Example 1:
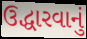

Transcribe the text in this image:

ઉદ્ધારવાનું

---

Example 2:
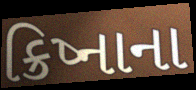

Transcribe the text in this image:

ક્રિષ્નાના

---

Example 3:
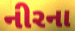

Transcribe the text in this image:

નીરના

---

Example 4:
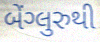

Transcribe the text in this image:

બેંગ્લુરુથી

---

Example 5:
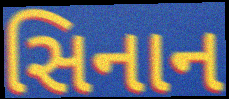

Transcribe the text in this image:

સિનાન